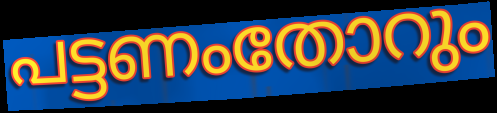
പട്ടണംതോറും